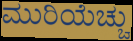
ಮುರಿಯೆಚ್ಚು